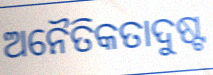
ଅନୈତିକତାଦୁଷ୍ଟ